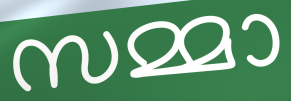
സമ്മാ